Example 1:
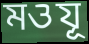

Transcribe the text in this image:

মওযূ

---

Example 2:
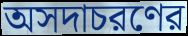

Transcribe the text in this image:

অসদাচরণের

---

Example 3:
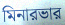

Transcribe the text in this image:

মিনারভার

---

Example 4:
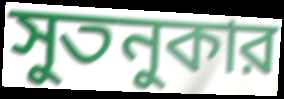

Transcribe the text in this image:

সুতনুকার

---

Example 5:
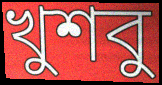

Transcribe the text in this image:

খুশবু